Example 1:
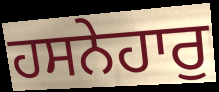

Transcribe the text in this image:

ਹਸਨੇਹਾਰੁ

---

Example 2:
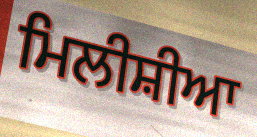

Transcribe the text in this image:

ਮਿਲੀਸ਼ੀਆ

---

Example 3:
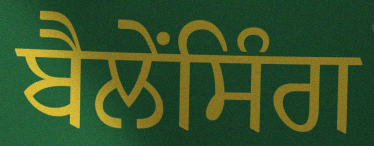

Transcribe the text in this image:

ਬੈਲੇਂਸਿੰਗ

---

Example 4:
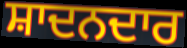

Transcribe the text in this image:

ਸ਼ਾਦਨਦਾਰ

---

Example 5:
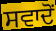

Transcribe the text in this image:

ਸਵਾਦੋਂ